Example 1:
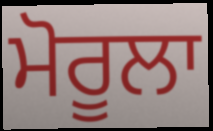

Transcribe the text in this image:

ਮੋਰੂਲਾ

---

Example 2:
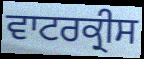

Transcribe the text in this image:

ਵਾਟਰਕ੍ਰੀਸ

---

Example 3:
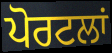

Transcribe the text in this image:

ਪੋਰਟਲਾਂ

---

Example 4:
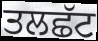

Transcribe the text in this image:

ਤਲਛੱਟ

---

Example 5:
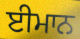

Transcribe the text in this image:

ਈਮਾਨ